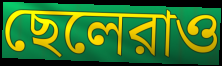
ছেলেরাও